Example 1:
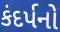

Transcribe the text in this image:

કંદર્પનો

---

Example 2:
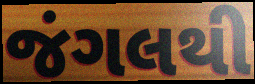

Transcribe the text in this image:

જંગલથી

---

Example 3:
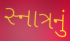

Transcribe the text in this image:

સ્નાત્રનું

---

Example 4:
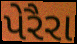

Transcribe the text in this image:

પેરૈરા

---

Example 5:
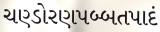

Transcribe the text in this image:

ચણ્ડોરણપબ્બતપાદં